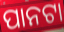
ପାନଟା